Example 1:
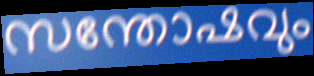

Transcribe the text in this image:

സന്തോഷവും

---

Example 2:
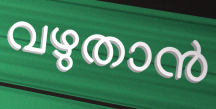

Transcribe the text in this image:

വഴുതാൻ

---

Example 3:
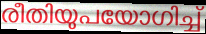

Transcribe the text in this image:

രീതിയുപയോഗിച്ച്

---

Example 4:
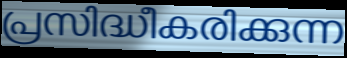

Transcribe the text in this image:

പ്രസിദ്ധീകരിക്കുന്ന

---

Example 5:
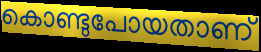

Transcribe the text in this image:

കൊണ്ടുപോയതാണ്